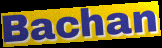
Bachan